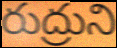
రుద్రుని